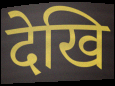
देखि